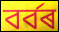
বৰ্বৰ